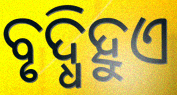
ବୃଦ୍ଧିହୁଏ